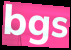
bgs